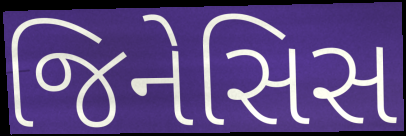
જિનેસિસ